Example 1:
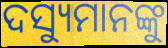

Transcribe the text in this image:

ଦସ୍ୟୁମାନଙ୍କୁ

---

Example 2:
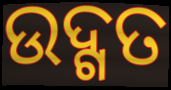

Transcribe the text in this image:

ଉଦ୍ଗତ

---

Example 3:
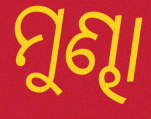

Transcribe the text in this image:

ମୁଣ୍ଢା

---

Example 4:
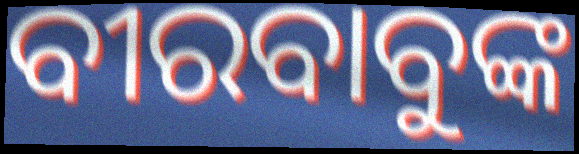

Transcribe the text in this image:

ବୀରବାବୁଙ୍କ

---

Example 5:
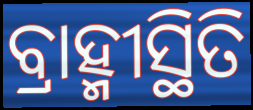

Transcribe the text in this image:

ବ୍ରାହ୍ମୀସ୍ଥିତି